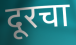
दूरचा